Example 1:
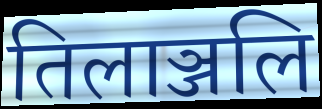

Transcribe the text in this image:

तिलाञ्जलि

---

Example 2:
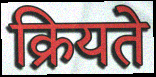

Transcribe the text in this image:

क्रियते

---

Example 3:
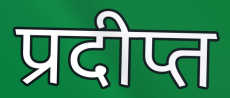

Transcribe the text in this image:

प्रदीप्त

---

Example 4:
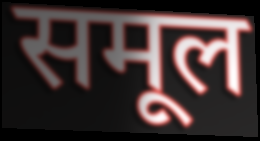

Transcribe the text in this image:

समूल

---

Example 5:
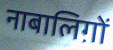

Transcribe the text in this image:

नाबालिग़ों